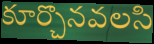
కూర్చొనవలసి